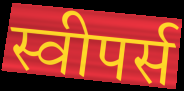
स्वीपर्स